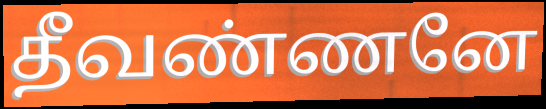
தீவண்ணனே